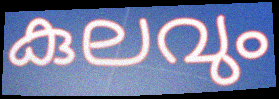
കുലവും